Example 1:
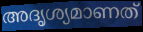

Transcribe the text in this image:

അദൃശ്യമാണത്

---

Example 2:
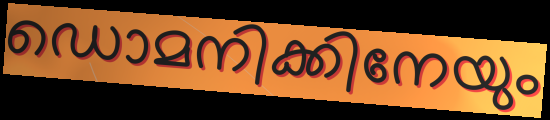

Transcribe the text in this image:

ഡൊമനിക്കിനേയും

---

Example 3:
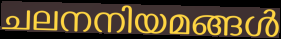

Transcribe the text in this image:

ചലനനിയമങ്ങൾ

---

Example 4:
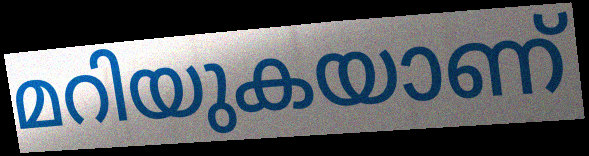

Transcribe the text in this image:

മറിയുകയാണ്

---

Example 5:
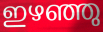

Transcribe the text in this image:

ഇഴഞ്ഞു